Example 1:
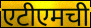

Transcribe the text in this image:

एटीएमची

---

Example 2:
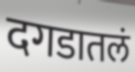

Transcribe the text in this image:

दगडातलं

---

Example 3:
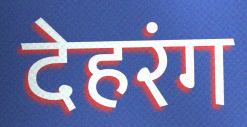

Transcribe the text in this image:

देहरंग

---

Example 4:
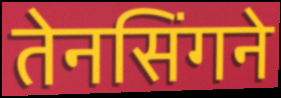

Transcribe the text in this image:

तेनसिंगने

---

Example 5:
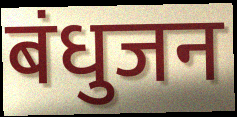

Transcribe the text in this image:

बंधुजन